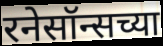
रनेसॉन्सच्या